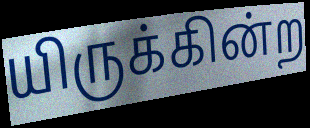
யிருக்கின்ற